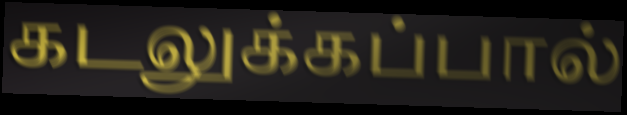
கடலுக்கப்பால்